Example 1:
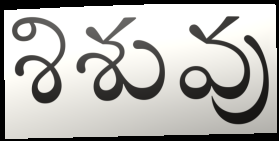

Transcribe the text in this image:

శిశువు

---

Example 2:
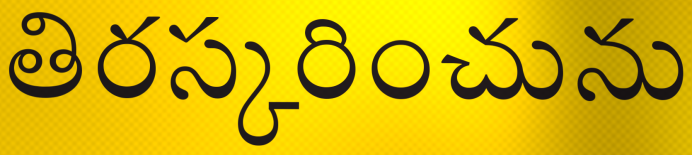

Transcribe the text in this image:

తిరస్కరించును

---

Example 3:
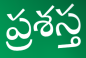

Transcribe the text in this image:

ప్రశస్త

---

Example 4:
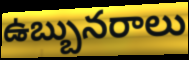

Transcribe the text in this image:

ఉబ్బునరాలు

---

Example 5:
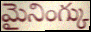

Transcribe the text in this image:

మైనింగ్కు